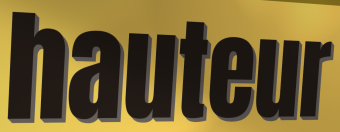
hauteur